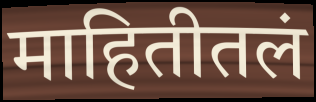
माहितीतलं